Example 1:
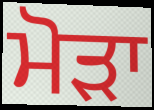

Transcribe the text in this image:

ਮੋੜਾ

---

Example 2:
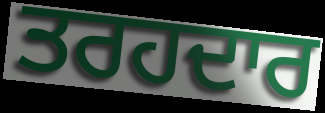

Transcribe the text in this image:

ਤਰਹਦਾਰ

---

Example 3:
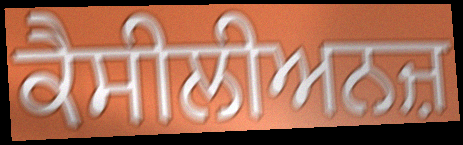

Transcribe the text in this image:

ਕੈਸੀਲੀਅਨਜ਼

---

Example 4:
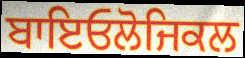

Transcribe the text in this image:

ਬਾਇਓਲੋਜਿਕਲ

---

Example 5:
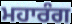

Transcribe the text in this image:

ਮਹਾਰੰਗ